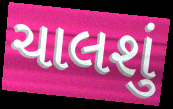
ચાલશું